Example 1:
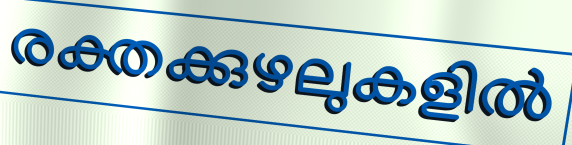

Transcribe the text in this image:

രക്തക്കുഴലുകളിൽ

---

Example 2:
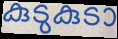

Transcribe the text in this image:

കുടുകുടാ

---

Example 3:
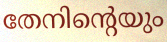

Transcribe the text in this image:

തേനിന്റെയും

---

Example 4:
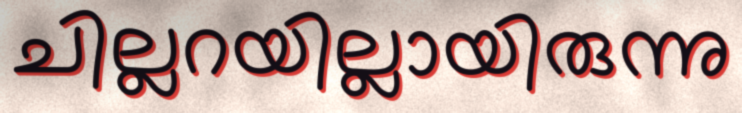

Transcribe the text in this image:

ചില്ലറയില്ലായിരുന്നു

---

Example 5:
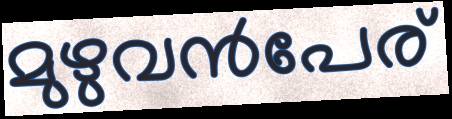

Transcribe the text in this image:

മുഴുവൻപേര്